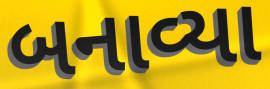
બનાવ્યા